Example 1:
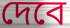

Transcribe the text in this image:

দেবে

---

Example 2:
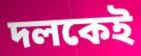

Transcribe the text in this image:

দলকেই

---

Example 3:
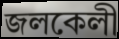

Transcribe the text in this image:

জলকেলী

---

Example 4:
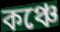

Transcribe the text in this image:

কঞ্চে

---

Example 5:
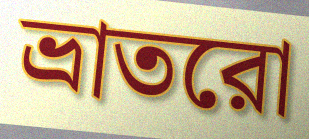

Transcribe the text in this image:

ভ্রাতরো